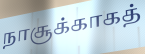
நாசூக்காகத்